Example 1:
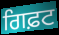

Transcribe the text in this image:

ਗਿਫ਼ਟ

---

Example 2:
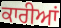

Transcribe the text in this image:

ਕਾਰੀਆਂ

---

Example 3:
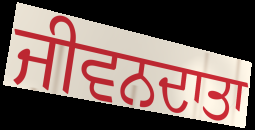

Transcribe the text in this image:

ਜੀਵਨਦਾਤਾ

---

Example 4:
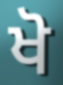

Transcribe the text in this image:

ਖੋ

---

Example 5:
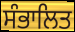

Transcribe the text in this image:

ਸੰਭਾਲਿਤ